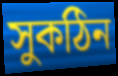
সুকঠিন